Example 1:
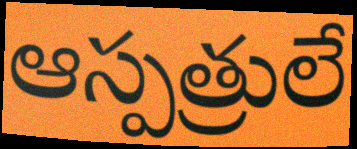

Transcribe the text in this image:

ఆస్పత్రులే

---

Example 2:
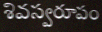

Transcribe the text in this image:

శివస్వరూపం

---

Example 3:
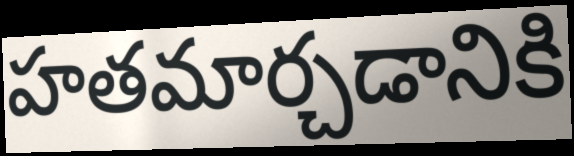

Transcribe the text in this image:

హతమార్చడానికి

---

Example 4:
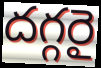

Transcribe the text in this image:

దగ్గరై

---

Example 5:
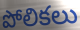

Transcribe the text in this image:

పోలికలు